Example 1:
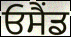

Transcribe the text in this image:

ਓਸੈਂਡ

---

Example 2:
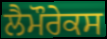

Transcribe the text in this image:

ਲੈਮੌਰੇਕਸ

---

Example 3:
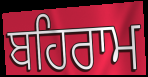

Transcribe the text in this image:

ਬਹਿਰਾਮ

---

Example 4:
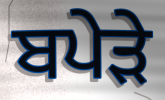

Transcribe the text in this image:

ਬਪੇੜੇ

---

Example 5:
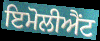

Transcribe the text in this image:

ਇਮੋਲੀਐਂਟ